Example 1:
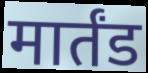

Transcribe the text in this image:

मार्तंड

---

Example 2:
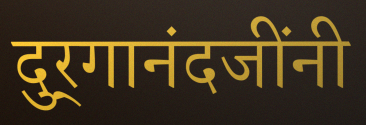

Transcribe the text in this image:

दुर्गानंदजींनी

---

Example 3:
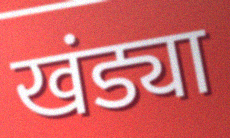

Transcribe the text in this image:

खंड्या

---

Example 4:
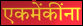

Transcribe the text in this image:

एकमेंकींना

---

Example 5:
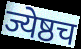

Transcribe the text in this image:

ज्येष्ठच